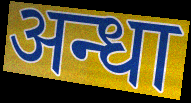
अन्धा